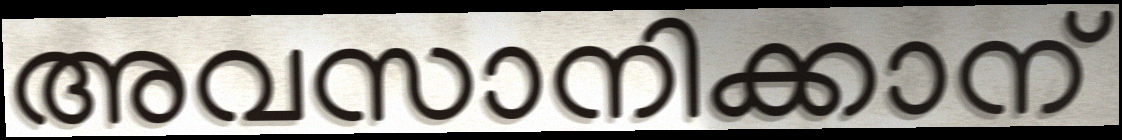
അവസാനിക്കാന്